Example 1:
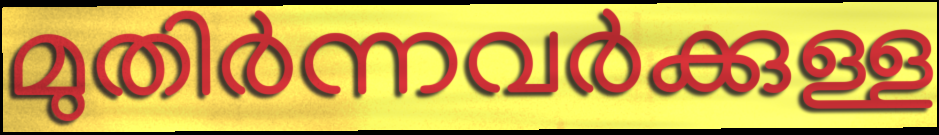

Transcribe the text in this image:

മുതിർന്നവർക്കുള്ള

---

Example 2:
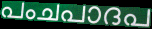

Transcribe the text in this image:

പംചപാദപ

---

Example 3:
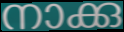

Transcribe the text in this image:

നാക്കു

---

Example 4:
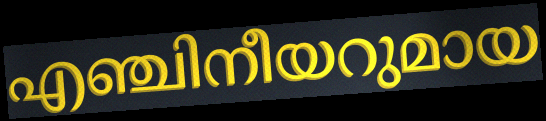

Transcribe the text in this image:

എഞ്ചിനീയറുമായ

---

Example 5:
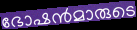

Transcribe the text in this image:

ഭോഷൻമാരുടെ